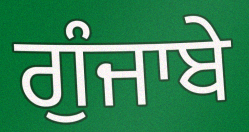
ਗੁੰਜਾਬੇ